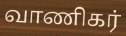
வாணிகர்